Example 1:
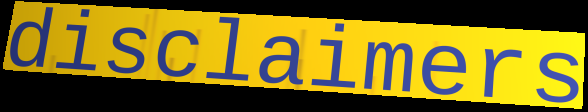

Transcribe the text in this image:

disclaimers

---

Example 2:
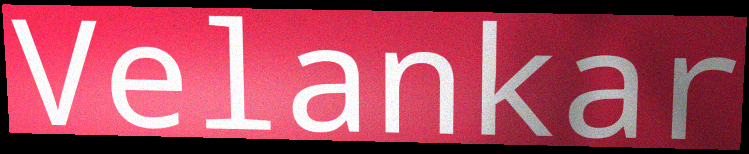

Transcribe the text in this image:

Velankar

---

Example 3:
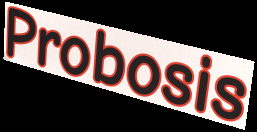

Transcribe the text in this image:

Probosis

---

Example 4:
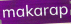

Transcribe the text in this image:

makarap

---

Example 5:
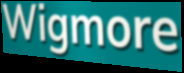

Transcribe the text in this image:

Wigmore